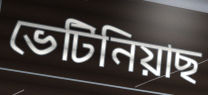
ভেটিনিয়াছ